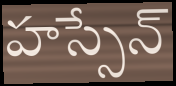
హస్సేన్